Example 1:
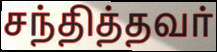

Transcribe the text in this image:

சந்தித்தவர்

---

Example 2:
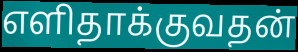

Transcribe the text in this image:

எளிதாக்குவதன்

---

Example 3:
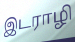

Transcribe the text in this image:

இடராழி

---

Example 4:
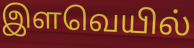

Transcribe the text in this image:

இளவெயில்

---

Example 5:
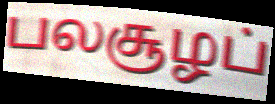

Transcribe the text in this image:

பலசூழப்